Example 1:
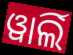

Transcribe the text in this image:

ୱାର୍ଲି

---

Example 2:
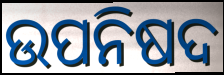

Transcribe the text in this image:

ଉପନିଷଦ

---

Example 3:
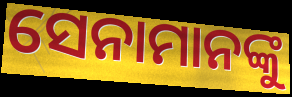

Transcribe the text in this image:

ସେନାମାନଙ୍କୁ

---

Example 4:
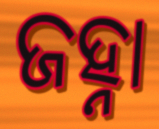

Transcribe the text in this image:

ଜହ୍ନା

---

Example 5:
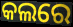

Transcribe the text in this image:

କଲରେ